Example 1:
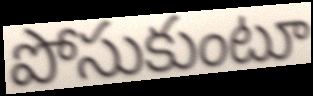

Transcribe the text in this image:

పోసుకుంటూ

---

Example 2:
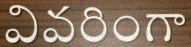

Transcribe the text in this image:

వివరింగా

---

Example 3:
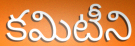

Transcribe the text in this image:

కమిటీని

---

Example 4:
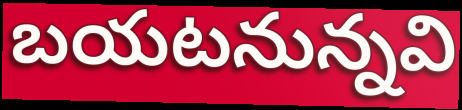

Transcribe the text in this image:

బయటనున్నవి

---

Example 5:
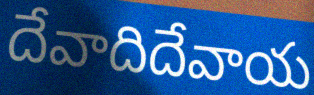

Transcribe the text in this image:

దేవాదిదేవాయ